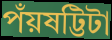
পঁয়ষট্টিটা